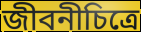
জীবনীচিত্রে